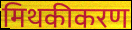
मिथकीकरण